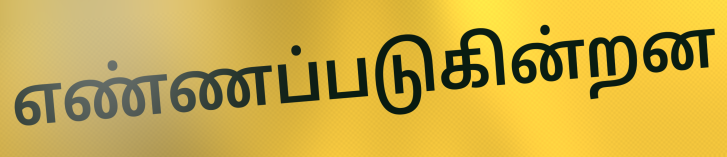
எண்ணப்படுகின்றன